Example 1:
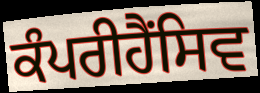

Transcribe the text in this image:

ਕੰਪਰੀਹੈਂਸਿਵ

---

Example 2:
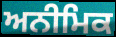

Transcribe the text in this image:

ਅਨੀਮਿਕ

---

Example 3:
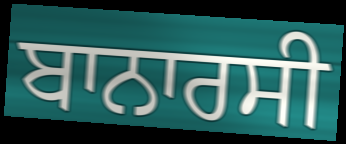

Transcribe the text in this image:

ਬਾਨਾਰਸੀ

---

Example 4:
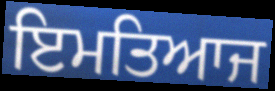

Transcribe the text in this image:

ਇਮਤਿਆਜ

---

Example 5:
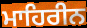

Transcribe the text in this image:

ਮਾਹਿਰੀਨ